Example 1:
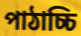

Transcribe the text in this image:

পাঠাচ্চি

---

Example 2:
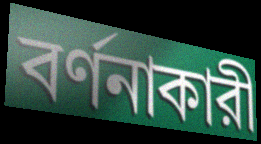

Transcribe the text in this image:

বর্ণনাকারী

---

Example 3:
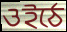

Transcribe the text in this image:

ওইঠে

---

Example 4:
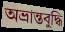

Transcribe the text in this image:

অভ্রান্তবুদ্ধি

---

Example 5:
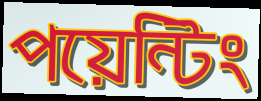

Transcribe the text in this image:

পয়েন্টিং